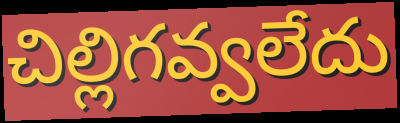
చిల్లిగవ్వలేదు